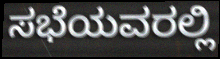
ಸಭೆಯವರಲ್ಲಿ